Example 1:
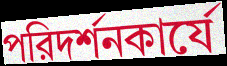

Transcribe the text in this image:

পরিদর্শনকার্যে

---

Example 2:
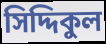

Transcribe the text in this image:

সিদ্দিকুল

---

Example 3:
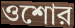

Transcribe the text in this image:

ওশোর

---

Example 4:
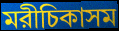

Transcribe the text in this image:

মরীচিকাসম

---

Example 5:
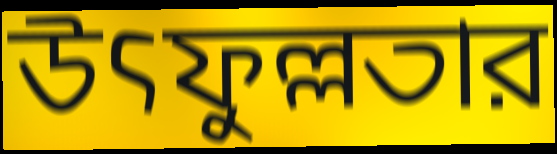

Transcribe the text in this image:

উৎফুল্লতার